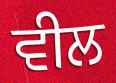
ਵੀਲ